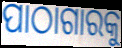
ପାଠାଗାରକୁ